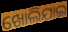
ଖୋଲିଯାଇ